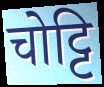
चोट्टि